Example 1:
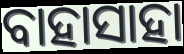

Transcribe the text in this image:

ବାହାସାହା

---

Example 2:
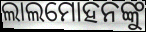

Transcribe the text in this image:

ଲାଲମୋହନଙ୍କୁ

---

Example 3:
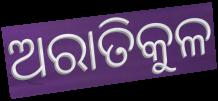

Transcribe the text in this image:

ଅରାତିକୁଳ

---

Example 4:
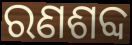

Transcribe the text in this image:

ରଣଶବ୍ଦ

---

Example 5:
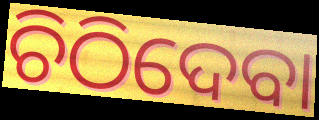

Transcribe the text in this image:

ଚିଠିଦେବା